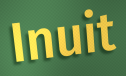
Inuit